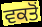
ਵਕਤੋਂ